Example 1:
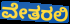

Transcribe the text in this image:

ವೇತರಲಿ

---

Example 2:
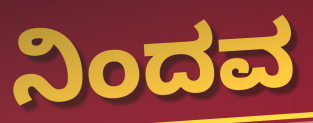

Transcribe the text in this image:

ನಿಂದವ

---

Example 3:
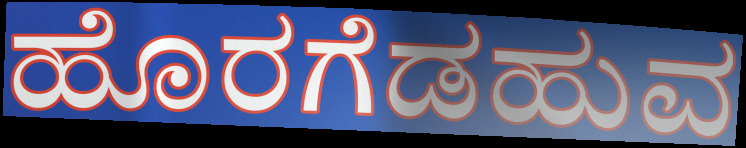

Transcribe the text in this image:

ಹೊರಗೆಡಹುವ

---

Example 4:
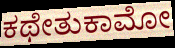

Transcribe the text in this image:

ಕಥೇತುಕಾಮೋ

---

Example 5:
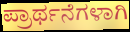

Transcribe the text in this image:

ಪ್ರಾರ್ಥನೆಗಳಾಗಿ